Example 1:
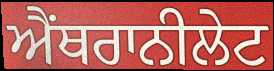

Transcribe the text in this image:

ਐਂਥਰਾਨੀਲੇਟ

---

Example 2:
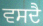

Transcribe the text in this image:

ਵਸਦੈ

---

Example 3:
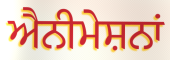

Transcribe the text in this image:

ਐਨੀਮੇਸ਼ਨਾਂ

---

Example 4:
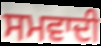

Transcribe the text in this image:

ਸਮਵਾਦੀ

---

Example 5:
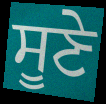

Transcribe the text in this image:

ਸੂਣੇ